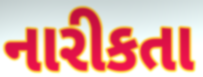
નારીકતા